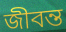
জীবন্ত